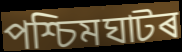
পশ্চিমঘাটৰ